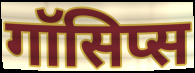
गॉसिप्स